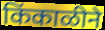
किंकाळीने